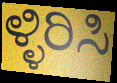
ಳ್ಳಿರಿಸಿ